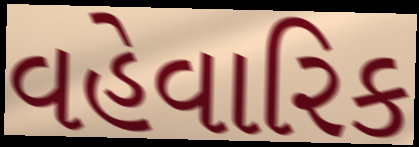
વહેવારિક